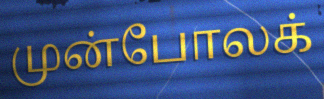
முன்போலக்